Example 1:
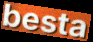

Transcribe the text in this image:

besta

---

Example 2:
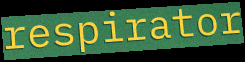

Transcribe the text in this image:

respirator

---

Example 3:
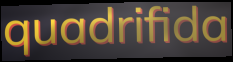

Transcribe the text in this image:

quadrifida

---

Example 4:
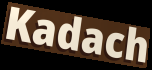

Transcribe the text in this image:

Kadach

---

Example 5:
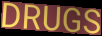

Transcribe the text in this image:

DRUGS